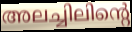
അലച്ചിലിന്റെ